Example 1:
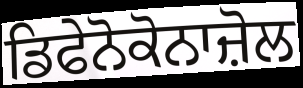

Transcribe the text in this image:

ਡਿਫੇਨੋਕੋਨਾਜ਼ੋਲ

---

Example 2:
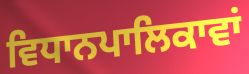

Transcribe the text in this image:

ਵਿਧਾਨਪਾਲਿਕਾਵਾਂ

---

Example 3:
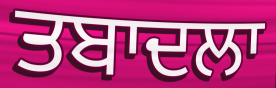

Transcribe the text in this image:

ਤਬਾਦਲਾ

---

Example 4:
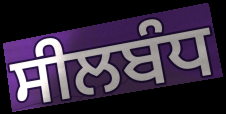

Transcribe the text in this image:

ਸੀਲਬੰਧ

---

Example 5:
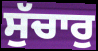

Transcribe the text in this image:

ਸੁੱਚਾਰੁ